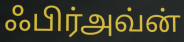
ஃபிர்அவ்ன்